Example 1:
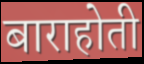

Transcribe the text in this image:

बाराहोती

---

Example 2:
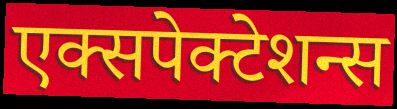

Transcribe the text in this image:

एक्सपेक्टेशन्स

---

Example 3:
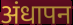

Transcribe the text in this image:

अंधापन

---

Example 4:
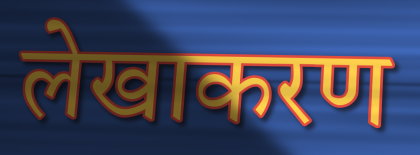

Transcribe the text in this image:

लेखाकरण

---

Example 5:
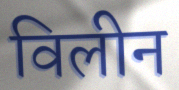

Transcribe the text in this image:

विलीन